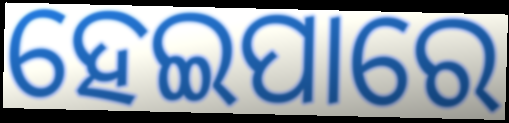
ହେଇପାରେ